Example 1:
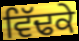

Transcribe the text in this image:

ਵਿੱਢਕੇ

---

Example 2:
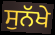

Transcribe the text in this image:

ਸੁਨੱਖੇ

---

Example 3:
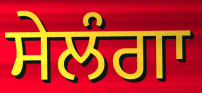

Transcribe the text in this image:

ਸੇਲੰਗਾ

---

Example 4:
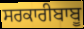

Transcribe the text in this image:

ਸਰਕਾਰੀਬਾਬੂ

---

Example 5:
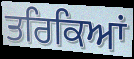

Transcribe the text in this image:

ਤਰਿਕਿਆਂ